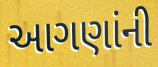
આગણાંની